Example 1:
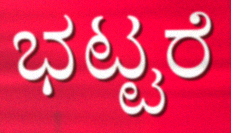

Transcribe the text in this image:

ಭಟ್ಟರೆ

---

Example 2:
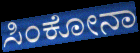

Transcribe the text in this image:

ಸಿಂಕೋನಾ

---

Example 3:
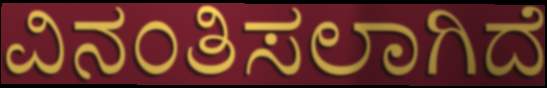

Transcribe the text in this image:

ವಿನಂತಿಸಲಾಗಿದೆ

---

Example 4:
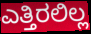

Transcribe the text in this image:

ಎತ್ತಿರಲಿಲ್ಲ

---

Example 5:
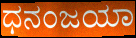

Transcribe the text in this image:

ಧನಂಜಯಾ